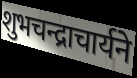
शुभचन्द्राचार्यने